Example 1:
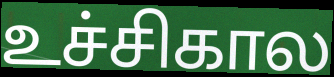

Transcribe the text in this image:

உச்சிகால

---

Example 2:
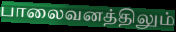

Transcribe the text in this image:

பாலைவனத்திலும்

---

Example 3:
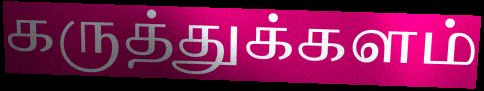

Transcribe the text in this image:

கருத்துக்களம்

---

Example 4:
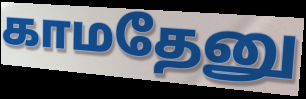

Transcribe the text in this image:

காமதேனு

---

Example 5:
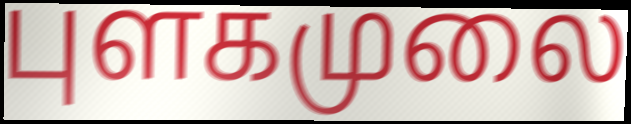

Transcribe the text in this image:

புளகமுலை